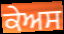
ਕੇਅਸ